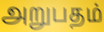
அறுபதம்